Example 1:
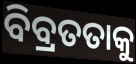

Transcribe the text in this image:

ବିବ୍ରତତାକୁ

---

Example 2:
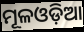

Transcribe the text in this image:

ମୂଳଓଡ଼ିଆ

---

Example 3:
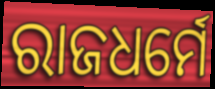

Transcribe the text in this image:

ରାଜଧର୍ମେ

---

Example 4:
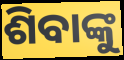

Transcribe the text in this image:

ଶିବାଙ୍କୁ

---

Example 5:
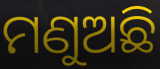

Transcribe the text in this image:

ମଣୁଅଛି